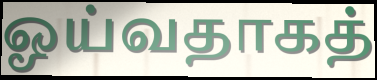
ஓய்வதாகத்